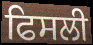
ਫਿਸਲੀ